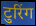
टुरिंग